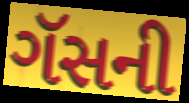
ગૅસની